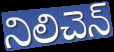
నిలిచెన్